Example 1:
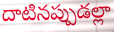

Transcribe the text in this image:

దాటినప్పుడల్లా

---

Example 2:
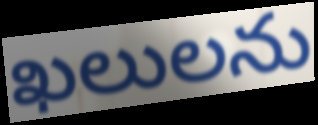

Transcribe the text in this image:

ఖలులను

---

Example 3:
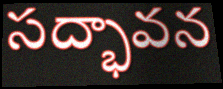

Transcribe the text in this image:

సద్భావన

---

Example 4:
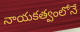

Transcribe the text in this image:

నాయకత్వంలోనే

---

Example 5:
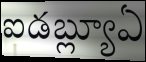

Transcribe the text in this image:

ఐడబ్ల్యూఏ